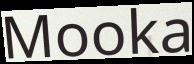
Mooka